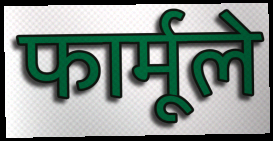
फार्मूले